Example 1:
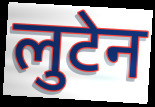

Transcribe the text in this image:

लुटेन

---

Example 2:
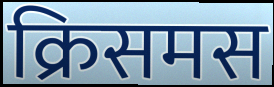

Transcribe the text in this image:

क्रिसमस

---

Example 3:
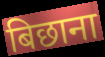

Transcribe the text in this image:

बिछाना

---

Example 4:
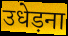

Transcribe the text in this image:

उधेड़ना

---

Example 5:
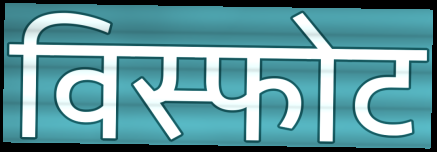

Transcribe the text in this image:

विस्फोट